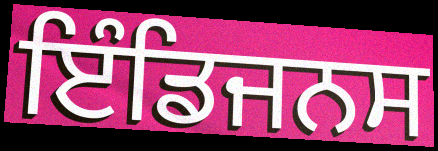
ਇੰਡਿਜਨਸ